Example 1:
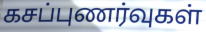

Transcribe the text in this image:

கசப்புணர்வுகள்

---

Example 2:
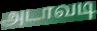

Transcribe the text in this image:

அடாவடி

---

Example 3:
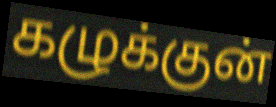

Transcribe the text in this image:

கழுக்குன்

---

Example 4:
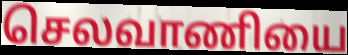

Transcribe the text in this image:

செலவாணியை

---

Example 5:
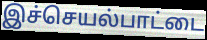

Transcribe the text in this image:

இச்செயல்பாட்டை